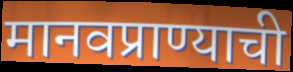
मानवप्राण्याची